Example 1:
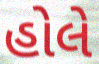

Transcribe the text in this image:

હોલે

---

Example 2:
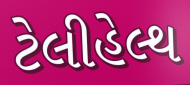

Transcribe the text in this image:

ટેલીહેલ્થ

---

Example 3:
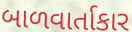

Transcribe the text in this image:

બાળવાર્તાકાર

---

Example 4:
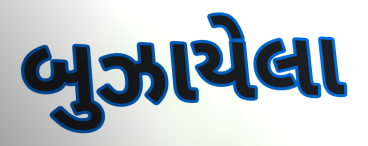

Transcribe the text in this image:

બુઝાયેલા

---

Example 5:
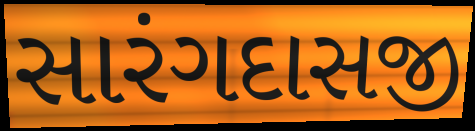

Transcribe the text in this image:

સારંગદાસજી